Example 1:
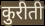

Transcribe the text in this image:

कुरीती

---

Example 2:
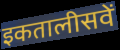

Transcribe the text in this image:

इकतालीसवें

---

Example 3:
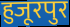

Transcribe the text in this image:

हुजूरपुर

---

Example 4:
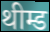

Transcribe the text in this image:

थीम्ड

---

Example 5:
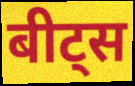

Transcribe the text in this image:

बीट्स